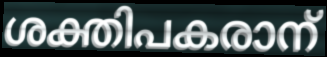
ശക്തിപകരാന്